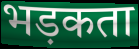
भड़कता